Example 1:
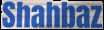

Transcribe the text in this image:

Shahbaz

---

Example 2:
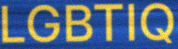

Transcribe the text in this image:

LGBTIQ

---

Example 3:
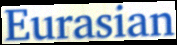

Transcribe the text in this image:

Eurasian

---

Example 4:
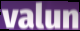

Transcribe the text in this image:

valun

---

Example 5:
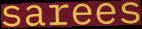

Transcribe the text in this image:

sarees